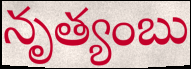
నృత్యంబు